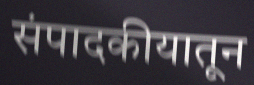
संपादकीयातून